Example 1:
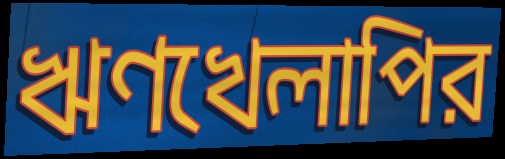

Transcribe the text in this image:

ঋণখেলাপির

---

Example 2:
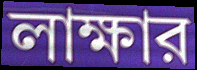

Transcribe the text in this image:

লাক্ষার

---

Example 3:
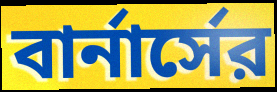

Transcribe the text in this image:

বার্নার্সের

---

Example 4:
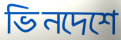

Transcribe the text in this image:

ভিনদেশে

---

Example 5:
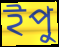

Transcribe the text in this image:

ইপু